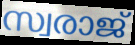
സ്വരാജ്